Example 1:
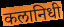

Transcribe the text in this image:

कलानिधी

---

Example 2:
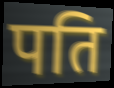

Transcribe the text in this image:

पति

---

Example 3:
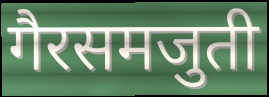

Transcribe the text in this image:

गैरसमजुती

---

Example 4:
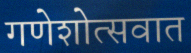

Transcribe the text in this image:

गणेशोत्सवात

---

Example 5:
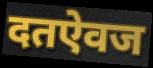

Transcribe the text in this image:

दतऐवज